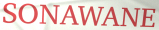
SONAWANE